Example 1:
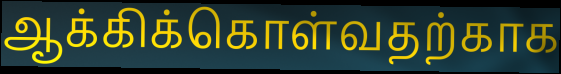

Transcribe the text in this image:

ஆக்கிக்கொள்வதற்காக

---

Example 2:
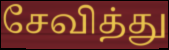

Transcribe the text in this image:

சேவித்து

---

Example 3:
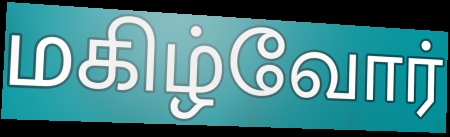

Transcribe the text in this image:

மகிழ்வோர்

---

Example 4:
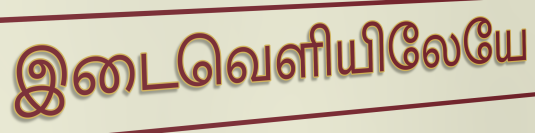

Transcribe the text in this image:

இடைவெளியிலேயே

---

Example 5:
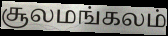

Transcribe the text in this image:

சூலமங்கலம்